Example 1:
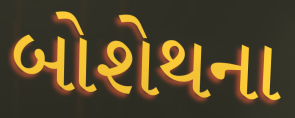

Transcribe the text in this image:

બોશેથના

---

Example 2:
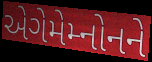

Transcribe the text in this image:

એગેમેમ્નોનને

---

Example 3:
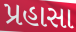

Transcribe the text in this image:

પ્રહાસા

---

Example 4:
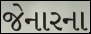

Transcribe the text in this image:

જેનારના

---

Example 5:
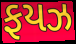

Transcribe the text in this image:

ફયઝ